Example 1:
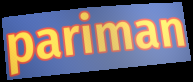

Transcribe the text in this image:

pariman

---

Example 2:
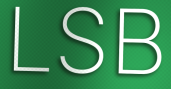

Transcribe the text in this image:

LSB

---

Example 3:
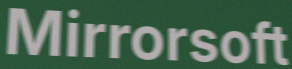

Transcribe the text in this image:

Mirrorsoft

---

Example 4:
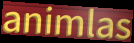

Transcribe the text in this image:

animlas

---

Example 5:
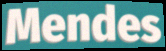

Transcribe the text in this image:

Mendes